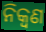
ନିକ୍ୱଣ